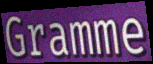
Gramme